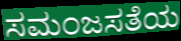
ಸಮಂಜಸತೆಯ